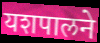
यशपालने